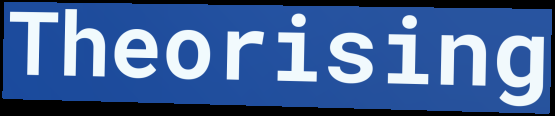
Theorising